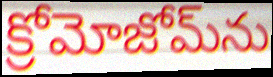
క్రోమోజోమ్‌ను